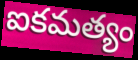
ఐకమత్యం